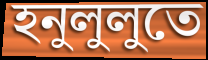
হনুলুলুতে